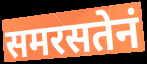
समरसतेनं